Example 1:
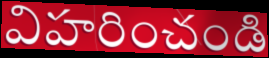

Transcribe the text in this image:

విహరించండి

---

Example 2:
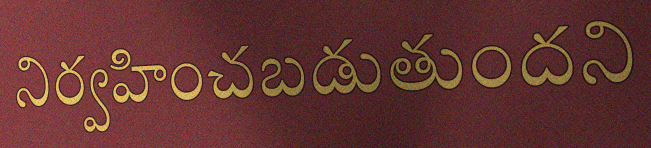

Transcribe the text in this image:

నిర్వహించబడుతుందని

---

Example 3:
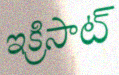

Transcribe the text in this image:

ఇక్రిసాట్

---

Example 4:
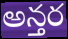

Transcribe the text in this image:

అన్తర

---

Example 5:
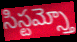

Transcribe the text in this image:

సిస్టమ్స్తో